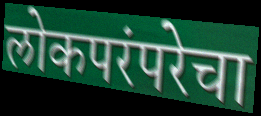
लोकपरंपरेचा